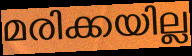
മരിക്കയില്ല